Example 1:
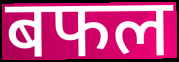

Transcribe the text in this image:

बफल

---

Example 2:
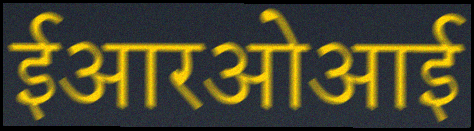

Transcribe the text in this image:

ईआरओआई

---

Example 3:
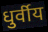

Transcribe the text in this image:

धुर्वीय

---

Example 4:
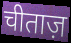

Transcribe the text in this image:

चीताज़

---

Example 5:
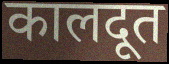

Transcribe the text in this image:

कालदूत